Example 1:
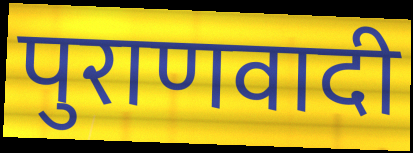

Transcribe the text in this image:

पुराणवादी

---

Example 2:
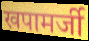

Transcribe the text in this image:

खपामर्जी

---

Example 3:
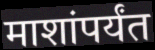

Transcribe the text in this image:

माशांपर्यंत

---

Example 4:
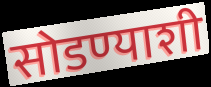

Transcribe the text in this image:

सोडण्याशी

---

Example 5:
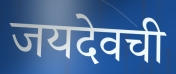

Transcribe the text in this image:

जयदेवची